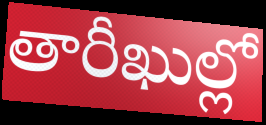
తారీఖుల్లో